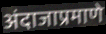
अंदाजाप्रमाणे